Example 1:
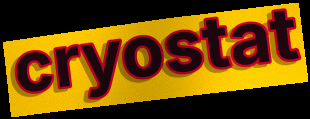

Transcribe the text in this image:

cryostat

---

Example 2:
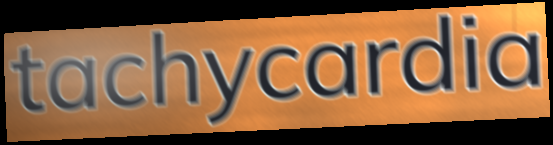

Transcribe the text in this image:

tachycardia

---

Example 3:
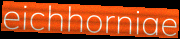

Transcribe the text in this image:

eichhorniae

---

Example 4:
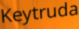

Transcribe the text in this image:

Keytruda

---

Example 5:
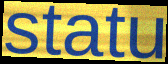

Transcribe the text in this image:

statu